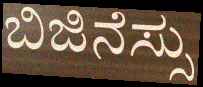
ಬಿಜಿನೆಸ್ಸು